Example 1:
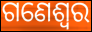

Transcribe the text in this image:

ଗଣେଶ୍ୱର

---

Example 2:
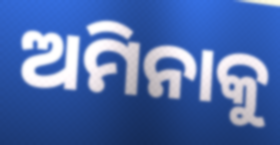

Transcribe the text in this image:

ଅମିନାକୁ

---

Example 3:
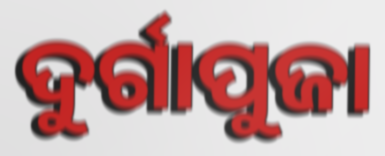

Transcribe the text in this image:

ଦୁର୍ଗାପୁଜା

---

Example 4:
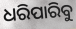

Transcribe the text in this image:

ଧରିପାରିବୁ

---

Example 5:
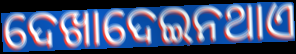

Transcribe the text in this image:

ଦେଖାଦେଇନଥାଏ